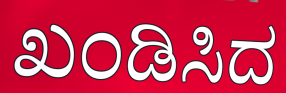
ಖಂಡಿಸಿದ